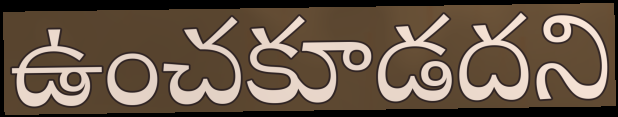
ఉంచకూడదని